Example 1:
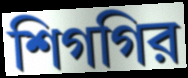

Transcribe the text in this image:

শিগগির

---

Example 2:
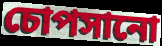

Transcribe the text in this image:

চোপসানো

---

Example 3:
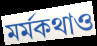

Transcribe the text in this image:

মর্মকথাও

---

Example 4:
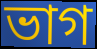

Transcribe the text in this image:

ভাগ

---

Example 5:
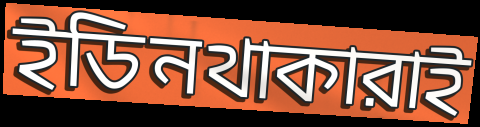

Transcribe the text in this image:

ইডিনথাকারাই